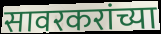
सावरकरांच्या